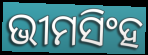
ଭୀମସିଂହ